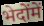
भेदोंमें